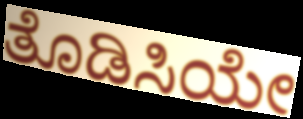
ತೊಡಿಸಿಯೇ